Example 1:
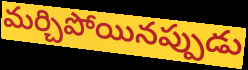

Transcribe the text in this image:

మర్చిపోయినప్పుడు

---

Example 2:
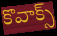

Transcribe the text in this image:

కొవాక్స్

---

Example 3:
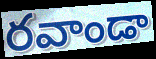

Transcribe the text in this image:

రవాండా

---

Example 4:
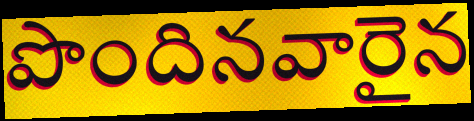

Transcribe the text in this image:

పొందినవారైన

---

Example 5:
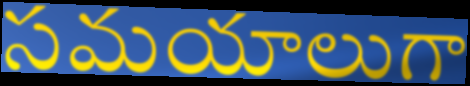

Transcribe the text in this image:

సమయాలుగా